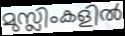
മുസ്ലിംകളിൽ